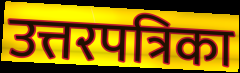
उत्तरपत्रिका